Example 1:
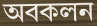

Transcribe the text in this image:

অবকলন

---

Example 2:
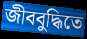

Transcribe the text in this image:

জীববুদ্ধিতে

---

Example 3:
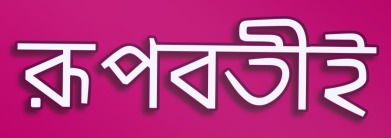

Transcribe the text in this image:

রূপবতীই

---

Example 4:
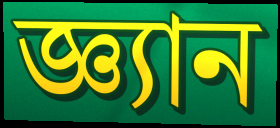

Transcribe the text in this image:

জ্ঞ্যান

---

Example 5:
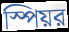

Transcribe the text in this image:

স্পিয়র